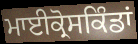
ਮਾਈਕ੍ਰੋਸਕਿੰਡਾਂ